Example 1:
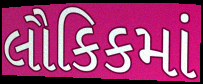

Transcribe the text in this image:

લૌકિકમાં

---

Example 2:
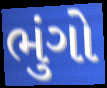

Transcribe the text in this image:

ભુંગો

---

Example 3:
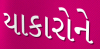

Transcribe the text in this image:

યાકારોને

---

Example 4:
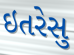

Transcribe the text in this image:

ઇતરેસુ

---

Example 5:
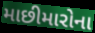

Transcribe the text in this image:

માછીમારોના